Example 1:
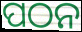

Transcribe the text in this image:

ପଠନ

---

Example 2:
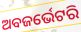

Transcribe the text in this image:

ଅବଜର୍ଭେଟରି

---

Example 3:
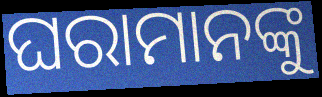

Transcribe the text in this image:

ଘରାମାନଙ୍କୁ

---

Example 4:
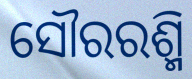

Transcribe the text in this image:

ସୌରରଶ୍ମି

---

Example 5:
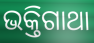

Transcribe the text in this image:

ଭକ୍ତିଗାଥା